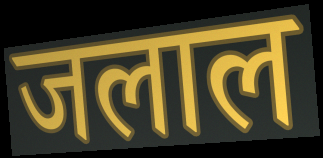
जलाल